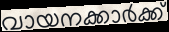
വായനക്കാർക്ക്